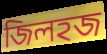
জিলহজ